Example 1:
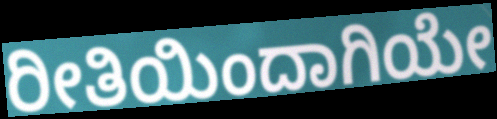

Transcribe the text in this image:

ರೀತಿಯಿಂದಾಗಿಯೇ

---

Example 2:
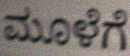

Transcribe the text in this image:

ಮೂಳೆಗೆ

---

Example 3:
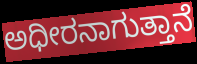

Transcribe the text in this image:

ಅಧೀರನಾಗುತ್ತಾನೆ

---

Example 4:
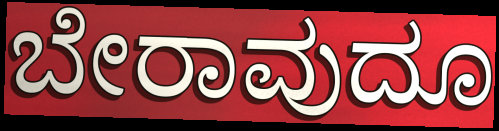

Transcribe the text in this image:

ಬೇರಾವುದೂ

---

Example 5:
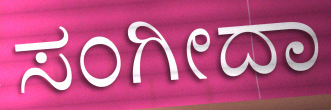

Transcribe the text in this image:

ಸಂಗೀದಾ